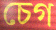
চেগ